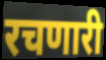
रचणारी